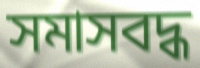
সমাসবদ্ধ